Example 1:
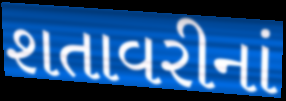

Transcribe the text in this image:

શતાવરીનાં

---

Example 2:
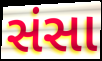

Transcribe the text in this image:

સંસા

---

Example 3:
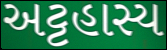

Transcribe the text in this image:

અટ્ટહાસ્ય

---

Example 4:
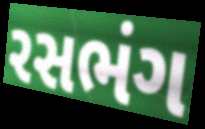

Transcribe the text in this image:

રસભંગ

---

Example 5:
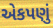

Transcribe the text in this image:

એકપણું